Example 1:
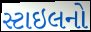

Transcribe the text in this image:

સ્ટાઇલનો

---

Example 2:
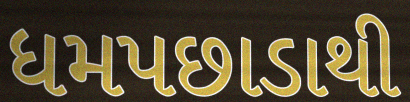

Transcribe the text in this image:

ધમપછાડાથી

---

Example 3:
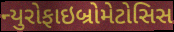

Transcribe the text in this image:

ન્યુરોફાઇબ્રોમેટોસિસ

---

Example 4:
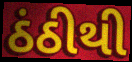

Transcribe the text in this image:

ઠંઠીથી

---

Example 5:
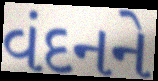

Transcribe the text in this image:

વંદનને